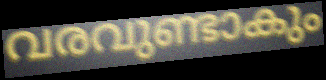
വരവുണ്ടാകും